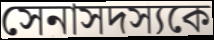
সেনাসদস্যকে